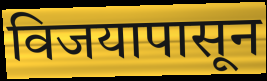
विजयापासून